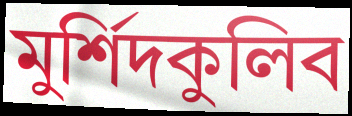
মুর্শিদকুলিব